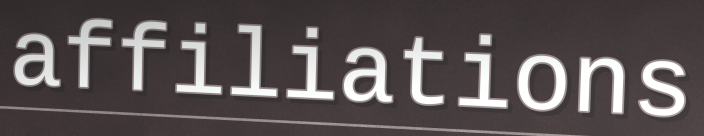
affiliations